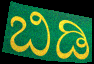
ಬಿಡಿ